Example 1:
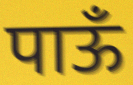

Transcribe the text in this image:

पाऊँ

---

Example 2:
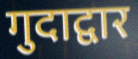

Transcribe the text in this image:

गुदाद्वार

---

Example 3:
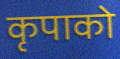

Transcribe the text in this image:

कृपाको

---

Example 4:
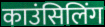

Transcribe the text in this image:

काउंसिलिंग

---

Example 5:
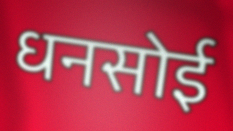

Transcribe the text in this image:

धनसोई